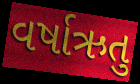
વર્ષાઋતુ